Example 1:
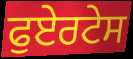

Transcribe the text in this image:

ਫੁਏਰਟੇਸ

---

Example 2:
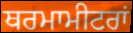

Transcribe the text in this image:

ਥਰਮਾਮੀਟਰਾਂ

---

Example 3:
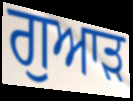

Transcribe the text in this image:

ਗੁਆੜ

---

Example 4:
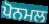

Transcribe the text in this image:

ਪੋਨਮਲ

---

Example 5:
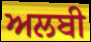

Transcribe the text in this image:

ਅਲਬੀ